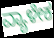
ವ್ಯಾಳೇಕ